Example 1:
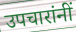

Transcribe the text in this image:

उपचारांनीं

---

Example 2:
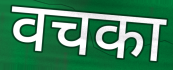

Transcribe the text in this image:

वचका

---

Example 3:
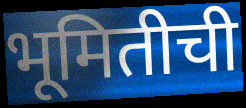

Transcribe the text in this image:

भूमितीची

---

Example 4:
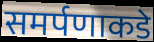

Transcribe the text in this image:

समर्पणाकडे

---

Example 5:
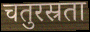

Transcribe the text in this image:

चतुरस्रता